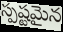
స్పష్టమైన